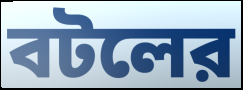
বটলের